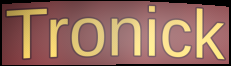
Tronick